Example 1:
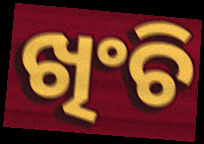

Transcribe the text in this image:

ଖିଂଚି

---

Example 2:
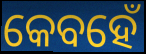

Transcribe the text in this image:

କେବହେଁ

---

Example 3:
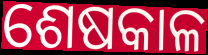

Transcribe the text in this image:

ଶେଷକାଳ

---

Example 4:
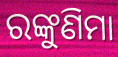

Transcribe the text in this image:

ରଙ୍କୁଣିମା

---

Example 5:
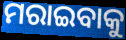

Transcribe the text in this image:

ମରାଇବାକୁ